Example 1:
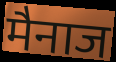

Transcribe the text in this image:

मैनाज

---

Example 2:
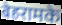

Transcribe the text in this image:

बेहरामके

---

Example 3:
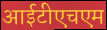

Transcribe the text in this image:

आईटीएचएम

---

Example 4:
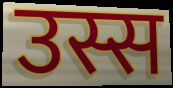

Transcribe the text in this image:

उस्स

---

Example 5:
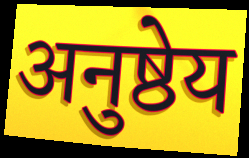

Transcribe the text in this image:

अनुष्ठेय